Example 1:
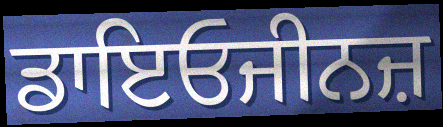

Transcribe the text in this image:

ਡਾਇਓਜੀਨਜ਼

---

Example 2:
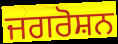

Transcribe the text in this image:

ਜਗਰੋਸ਼ਨ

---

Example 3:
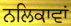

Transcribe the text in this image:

ਨਲਿਕਾਵਾਂ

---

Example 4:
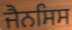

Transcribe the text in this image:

ਜੈਨਸਿਸ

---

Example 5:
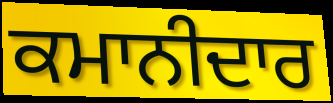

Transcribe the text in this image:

ਕਮਾਨੀਦਾਰ